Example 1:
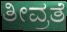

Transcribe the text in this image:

ತೀವ್ರತೆ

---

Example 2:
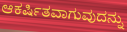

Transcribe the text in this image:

ಆಕರ್ಷಿತವಾಗುವುದನ್ನು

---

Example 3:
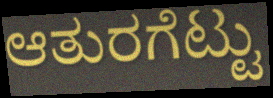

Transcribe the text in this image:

ಆತುರಗೆಟ್ಟು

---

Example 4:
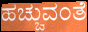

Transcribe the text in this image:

ಹಚ್ಚುವಂತೆ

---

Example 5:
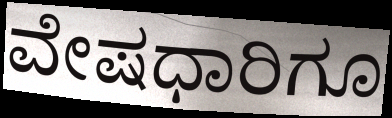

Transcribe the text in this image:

ವೇಷಧಾರಿಗೂ